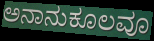
ಅನಾನುಕೂಲವೂ